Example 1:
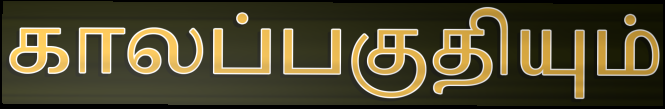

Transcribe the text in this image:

காலப்பகுதியும்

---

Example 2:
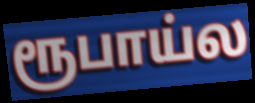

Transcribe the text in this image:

ரூபாய்ல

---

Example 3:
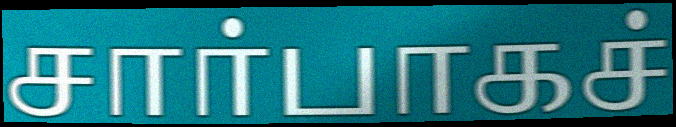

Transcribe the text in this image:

சார்பாகச்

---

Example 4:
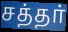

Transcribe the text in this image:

சத்தர்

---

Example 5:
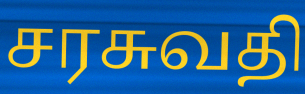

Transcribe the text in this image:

சரசுவதி